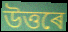
উত্তৰে